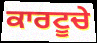
ਕਾਰਟੂਚੇ